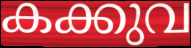
കക്കുവ